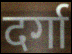
दर्गा